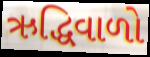
ઋદ્ધિવાળો